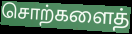
சொற்களைத்